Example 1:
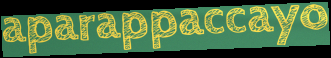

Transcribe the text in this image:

aparappaccayo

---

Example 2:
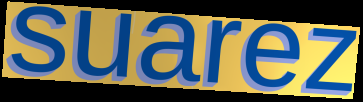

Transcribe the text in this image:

suarez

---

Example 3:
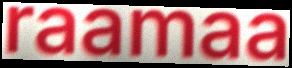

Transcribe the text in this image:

raamaa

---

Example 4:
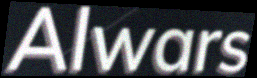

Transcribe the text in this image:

Alwars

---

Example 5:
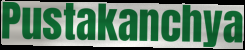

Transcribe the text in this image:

Pustakanchya